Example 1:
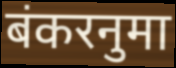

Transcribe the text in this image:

बंकरनुमा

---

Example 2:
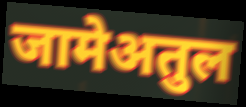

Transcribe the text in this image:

जामेअतुल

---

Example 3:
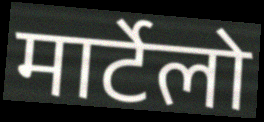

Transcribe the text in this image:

मार्टेलो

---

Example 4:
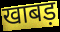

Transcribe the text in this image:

खाबड़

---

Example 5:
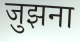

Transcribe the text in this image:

जुझना